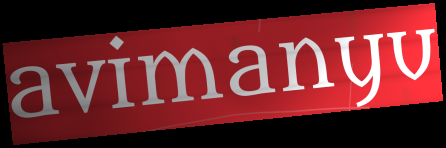
avimanyu